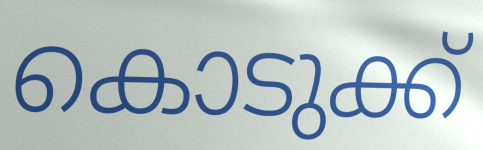
കൊടുക്ക്